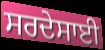
ਸਰਦੇਸਾਈ